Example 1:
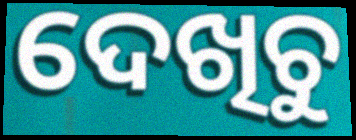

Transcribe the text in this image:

ଦେଖିଚୁ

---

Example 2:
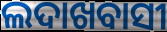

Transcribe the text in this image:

ଲଦାଖବାସୀ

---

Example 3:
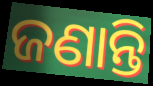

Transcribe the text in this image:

ଜଣାନ୍ତି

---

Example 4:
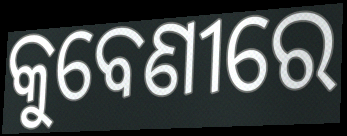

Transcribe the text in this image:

କୁବେଣୀରେ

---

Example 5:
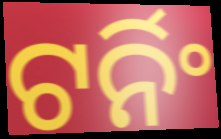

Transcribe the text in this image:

ଟର୍ନିଂ